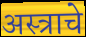
अस्त्राचे